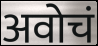
अवोचं